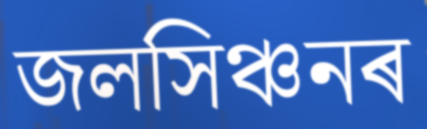
জলসিঞ্চনৰ